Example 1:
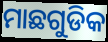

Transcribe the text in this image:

ମାଛଗୁଡିକ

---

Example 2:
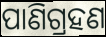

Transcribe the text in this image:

ପାଣିଗ୍ରହଣ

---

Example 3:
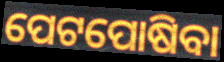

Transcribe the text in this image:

ପେଟପୋଷିବା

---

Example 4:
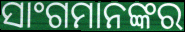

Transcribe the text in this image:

ସାଂଗମାନଙ୍କର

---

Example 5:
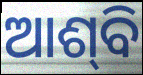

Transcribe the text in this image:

ଆଶ୍‍ବି